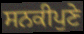
ਸਨਕੀਪੁਣੇ